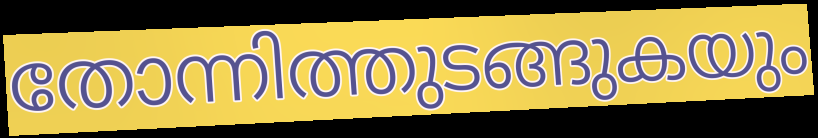
തോന്നിത്തുടങ്ങുകയും